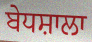
ਬੇਧਸ਼ਾਲਾ